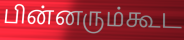
பின்னரும்கூட